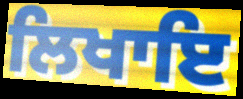
ਲਿਖਾਇ